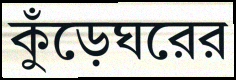
কুঁড়েঘরের